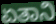
ಏತಾನಿ